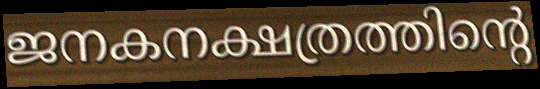
ജനകനക്ഷത്രത്തിന്റെ